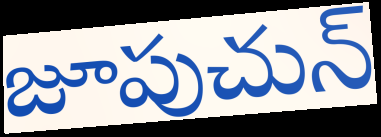
జూపుచున్